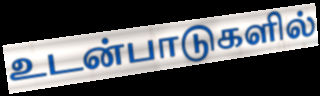
உடன்பாடுகளில்